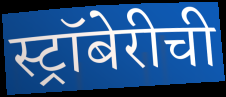
स्ट्रॉबेरीची